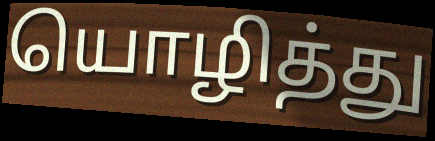
யொழித்து